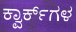
ಕ್ವಾರ್ಕ್‌ಗಳ